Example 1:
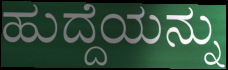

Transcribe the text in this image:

ಹುದ್ದೆಯನ್ನು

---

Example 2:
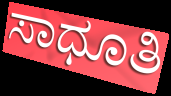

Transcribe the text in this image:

ಸಾಧೂತಿ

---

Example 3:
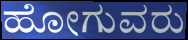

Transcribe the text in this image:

ಹೋಗುವರು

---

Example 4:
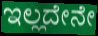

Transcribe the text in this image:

ಇಲ್ಲದೇನೇ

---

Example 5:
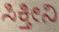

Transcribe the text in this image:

ಸಿಕ್ತೀನಿ